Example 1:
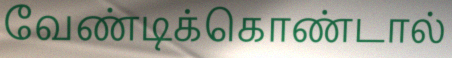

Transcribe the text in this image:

வேண்டிக்கொண்டால்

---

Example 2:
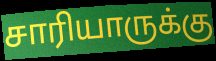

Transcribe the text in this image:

சாரியாருக்கு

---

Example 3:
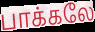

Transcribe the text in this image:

பாக்கலே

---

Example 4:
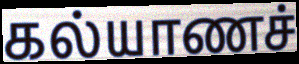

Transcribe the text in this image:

கல்யாணச்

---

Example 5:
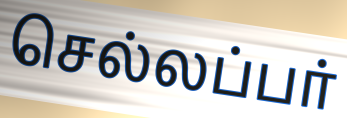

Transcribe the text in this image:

செல்லப்பர்